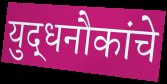
युद्धनौकांचे